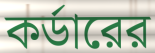
কর্ডারের